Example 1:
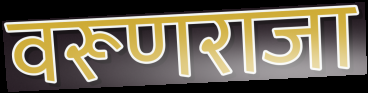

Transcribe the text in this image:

वरूणराजा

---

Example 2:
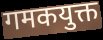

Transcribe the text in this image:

गमकयुक्त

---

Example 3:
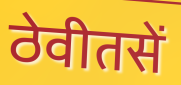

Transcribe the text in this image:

ठेवीतसें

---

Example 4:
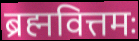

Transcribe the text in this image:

ब्रह्मवित्तमः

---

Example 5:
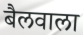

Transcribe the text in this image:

बैलवाला